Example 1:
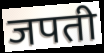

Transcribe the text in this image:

जपती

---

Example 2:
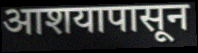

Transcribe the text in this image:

आशयापासून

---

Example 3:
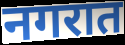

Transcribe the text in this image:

नगरात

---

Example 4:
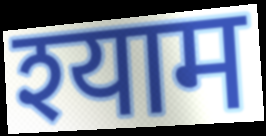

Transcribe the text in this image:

श्‍याम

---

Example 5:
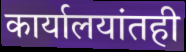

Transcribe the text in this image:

कार्यालयांतही